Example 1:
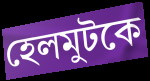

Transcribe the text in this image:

হেলমুটকে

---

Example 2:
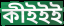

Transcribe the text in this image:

কীইইই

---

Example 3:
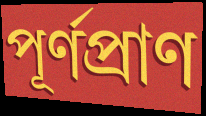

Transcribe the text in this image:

পূর্ণপ্রাণ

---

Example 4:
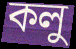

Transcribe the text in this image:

কলু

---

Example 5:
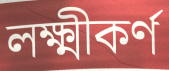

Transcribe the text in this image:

লক্ষ্মীকর্ণ